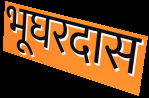
भूघरदास